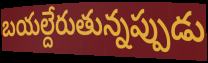
బయల్దేరుతున్నప్పుడు